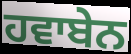
ਹਵਾਬੇਨ